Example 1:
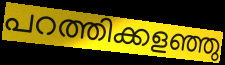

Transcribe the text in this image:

പറത്തിക്കളഞ്ഞു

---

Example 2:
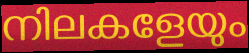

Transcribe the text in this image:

നിലകളേയും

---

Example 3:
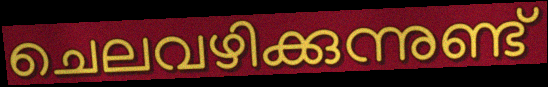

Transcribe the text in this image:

ചെലവഴിക്കുന്നുണ്ട്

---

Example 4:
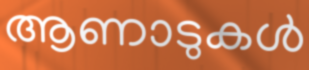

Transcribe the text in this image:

ആണാടുകൾ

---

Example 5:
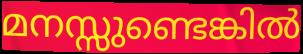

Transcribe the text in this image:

മനസ്സുണ്ടെങ്കിൽ